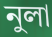
নুলা